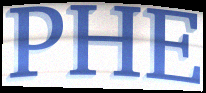
PHE